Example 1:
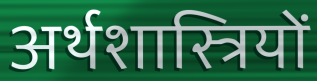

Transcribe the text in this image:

अर्थशास्त्रियों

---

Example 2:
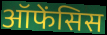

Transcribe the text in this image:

ऑफेंसिस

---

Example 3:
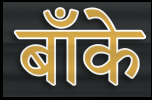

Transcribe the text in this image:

बाँके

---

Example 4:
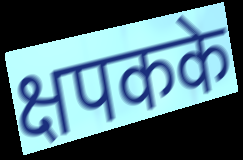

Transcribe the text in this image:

क्षपकके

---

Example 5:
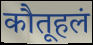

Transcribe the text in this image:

कौतूहलं